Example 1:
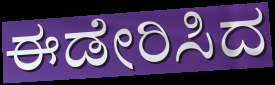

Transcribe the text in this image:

ಈಡೇರಿಸಿದ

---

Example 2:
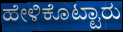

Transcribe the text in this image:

ಹೇಳಿಕೊಟ್ಟಾರು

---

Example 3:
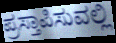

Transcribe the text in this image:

ಪ್ರಸ್ತಾಪಿಸುವಲ್ಲಿ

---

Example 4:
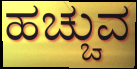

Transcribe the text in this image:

ಹಚ್ಚುವ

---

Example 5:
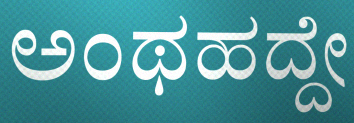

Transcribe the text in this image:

ಅಂಥಹದ್ದೇ